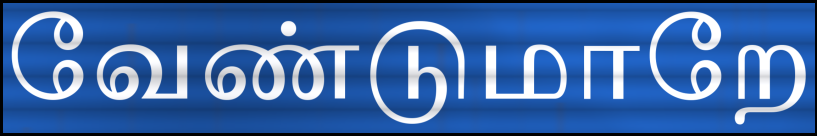
வேண்டுமாறே